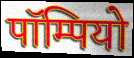
पॉम्पियो